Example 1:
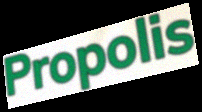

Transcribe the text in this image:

Propolis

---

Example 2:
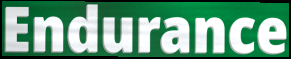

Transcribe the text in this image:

Endurance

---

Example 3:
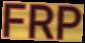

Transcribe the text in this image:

FRP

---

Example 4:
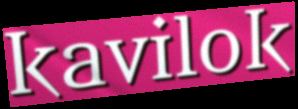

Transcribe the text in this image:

kavilok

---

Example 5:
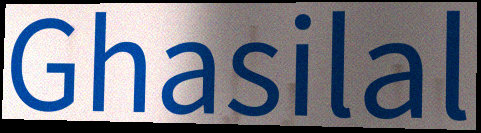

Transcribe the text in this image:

Ghasilal